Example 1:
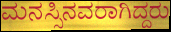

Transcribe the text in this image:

ಮನಸ್ಸಿನವರಾಗಿದ್ದರು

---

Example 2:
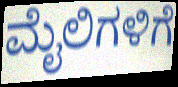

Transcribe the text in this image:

ಮೈಲಿಗಳಿಗೆ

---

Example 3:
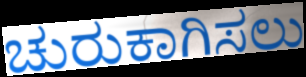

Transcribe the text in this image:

ಚುರುಕಾಗಿಸಲು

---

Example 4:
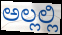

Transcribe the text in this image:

ಅಲ್ಲಲ್ಲಿ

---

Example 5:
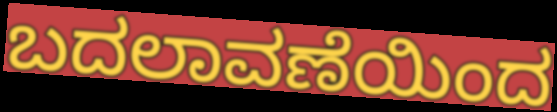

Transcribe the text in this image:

ಬದಲಾವಣೆಯಿಂದ